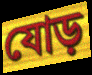
যোড়